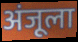
अंजूला